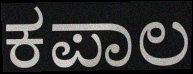
ಕಪಾಲ